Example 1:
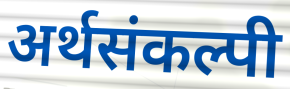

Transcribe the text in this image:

अर्थसंकल्पी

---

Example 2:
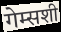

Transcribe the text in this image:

गेम्सशी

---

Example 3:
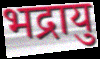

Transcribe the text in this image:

भद्रायु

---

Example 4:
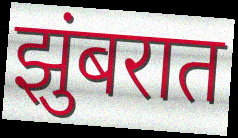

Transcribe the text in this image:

झुंबरात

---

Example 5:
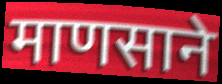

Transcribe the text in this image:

माणसाने